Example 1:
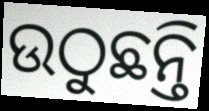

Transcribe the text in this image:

ଉଠୁଛନ୍ତି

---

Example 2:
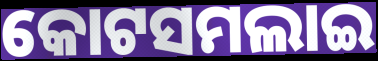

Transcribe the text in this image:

କୋଟସମଲାଇ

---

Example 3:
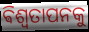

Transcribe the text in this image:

ଵିଶ୍ଵତାପନକୁ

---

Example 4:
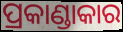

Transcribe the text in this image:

ପ୍ରକାଣ୍ଡାକାର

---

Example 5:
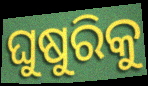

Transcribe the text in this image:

ଘୁଷୁରିକୁ